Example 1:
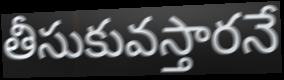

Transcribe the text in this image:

తీసుకువస్తారనే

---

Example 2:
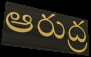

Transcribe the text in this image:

ఆరుద్ర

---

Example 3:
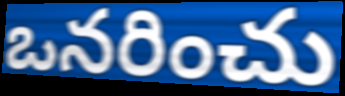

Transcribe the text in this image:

ఒనరించు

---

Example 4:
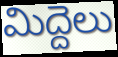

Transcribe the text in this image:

మిద్దెలు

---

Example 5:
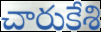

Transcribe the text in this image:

చారుకేశి